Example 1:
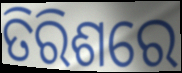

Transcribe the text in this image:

ତିରିଶରେ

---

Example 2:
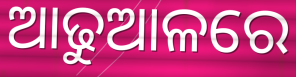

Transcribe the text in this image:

ଆଢୁଆଳରେ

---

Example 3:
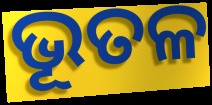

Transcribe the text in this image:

ଭୂତଳ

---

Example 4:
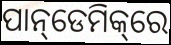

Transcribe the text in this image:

ପାନ୍‌ଡେମିକ୍‌ରେ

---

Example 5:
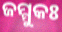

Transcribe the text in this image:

ଜମ୍ମୁକଃ